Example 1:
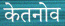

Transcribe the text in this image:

केतनोव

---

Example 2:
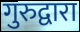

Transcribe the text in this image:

गुरुद्वारा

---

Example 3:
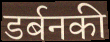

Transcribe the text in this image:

डर्बनकी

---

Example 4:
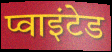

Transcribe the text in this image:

प्वाइंटेड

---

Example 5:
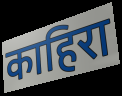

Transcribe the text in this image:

काहिरा